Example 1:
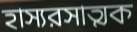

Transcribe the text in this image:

হাস্যরসাত্মক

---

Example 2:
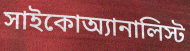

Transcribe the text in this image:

সাইকোঅ্যানালিস্ট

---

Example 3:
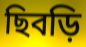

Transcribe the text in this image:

ছিবড়ি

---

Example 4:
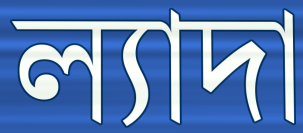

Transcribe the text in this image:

ল্যাদা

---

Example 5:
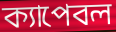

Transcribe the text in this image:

ক্যাপেবল